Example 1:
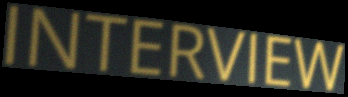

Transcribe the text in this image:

INTERVIEW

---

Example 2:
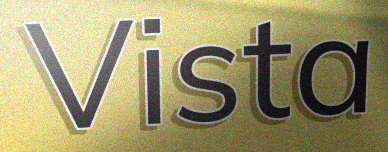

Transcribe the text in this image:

Vista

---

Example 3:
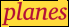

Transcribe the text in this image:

planes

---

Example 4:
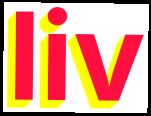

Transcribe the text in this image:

liv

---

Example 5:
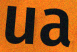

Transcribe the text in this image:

ua